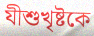
যীশুখৃষ্টকে